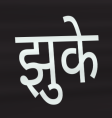
झुके